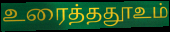
உரைத்ததூஉம்